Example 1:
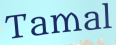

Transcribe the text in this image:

Tamal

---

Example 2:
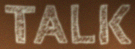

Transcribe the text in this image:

TALK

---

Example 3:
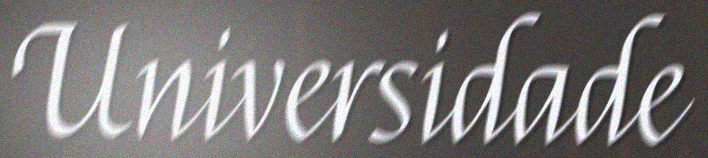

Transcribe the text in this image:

Universidade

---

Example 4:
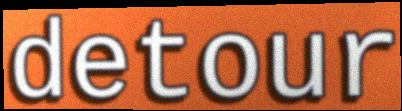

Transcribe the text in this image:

detour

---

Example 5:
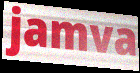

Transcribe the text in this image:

jamva